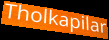
Tholkapilar